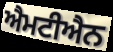
ਐਮਟੀਐਨ